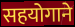
सहयोगाने